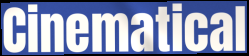
Cinematical